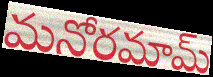
మనోరమామ్